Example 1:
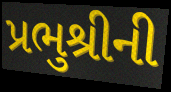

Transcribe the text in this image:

પ્રભુશ્રીની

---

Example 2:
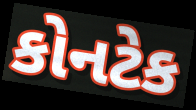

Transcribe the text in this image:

કોનટેક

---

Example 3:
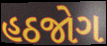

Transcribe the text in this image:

હઠજોગ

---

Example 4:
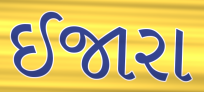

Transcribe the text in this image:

ઈજારા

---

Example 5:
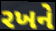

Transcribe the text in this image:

રખને